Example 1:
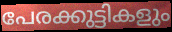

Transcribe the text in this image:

പേരക്കുട്ടികളും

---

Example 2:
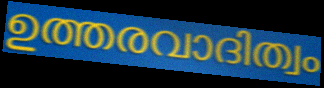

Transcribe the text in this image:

ഉത്തരവാദിത്വം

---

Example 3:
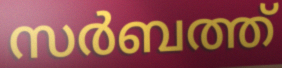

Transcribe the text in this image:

സർബത്ത്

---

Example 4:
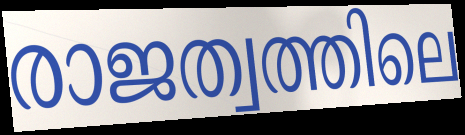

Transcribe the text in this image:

രാജത്വത്തിലെ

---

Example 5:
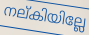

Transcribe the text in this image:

നല്കിയില്ലേ